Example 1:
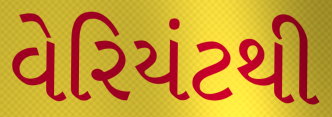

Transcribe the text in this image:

વેરિયંટથી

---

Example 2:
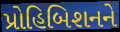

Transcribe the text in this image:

પ્રોહિબિશનને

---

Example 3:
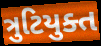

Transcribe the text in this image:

ત્રુટિયુક્ત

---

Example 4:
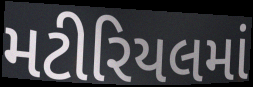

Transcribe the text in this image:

મટીરિયલમાં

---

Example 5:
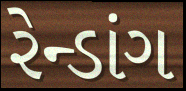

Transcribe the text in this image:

રેન્ડાંગ